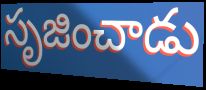
సృజించాడు